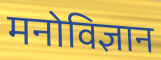
मनोविज्ञान